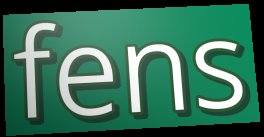
fens